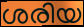
ശരിയ